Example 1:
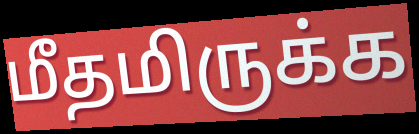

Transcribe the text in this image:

மீதமிருக்க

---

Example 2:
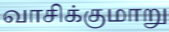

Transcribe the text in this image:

வாசிக்குமாறு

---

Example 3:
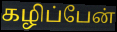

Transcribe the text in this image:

கழிப்பேன்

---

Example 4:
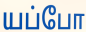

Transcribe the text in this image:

யப்போ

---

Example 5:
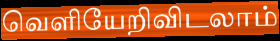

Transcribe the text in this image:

வெளியேறிவிடலாம்